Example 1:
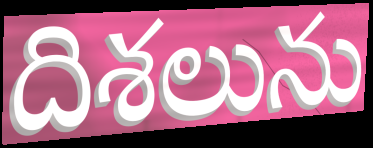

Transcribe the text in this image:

దిశలును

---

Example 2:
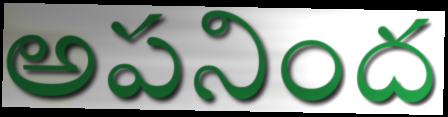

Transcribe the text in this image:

అపనింద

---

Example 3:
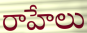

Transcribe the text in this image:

రాహేలు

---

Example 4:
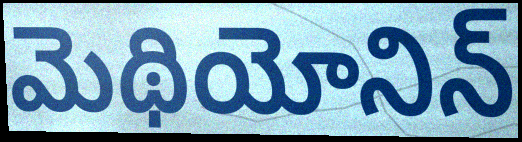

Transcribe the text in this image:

మెథియోనిన్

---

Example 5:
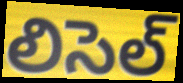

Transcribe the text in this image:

లిసెల్